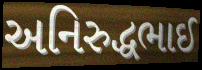
અનિરુદ્ધભાઈ